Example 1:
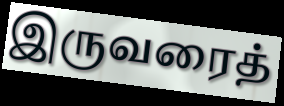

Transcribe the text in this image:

இருவரைத்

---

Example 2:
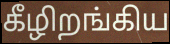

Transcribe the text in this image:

கீழிறங்கிய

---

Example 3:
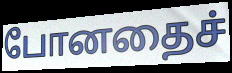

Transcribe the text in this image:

போனதைச்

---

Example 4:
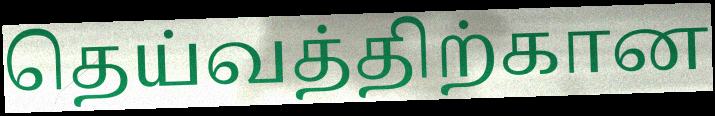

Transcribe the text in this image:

தெய்வத்திற்கான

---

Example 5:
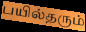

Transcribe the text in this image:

பயில்தரும்